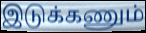
இடுக்கணும்